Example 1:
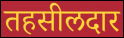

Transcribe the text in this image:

तहसीलदार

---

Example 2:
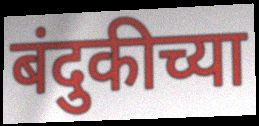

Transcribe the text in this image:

बंदुकीच्या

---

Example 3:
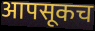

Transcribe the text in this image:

आपसूकच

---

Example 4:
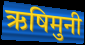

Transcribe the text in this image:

ऋषिमुनी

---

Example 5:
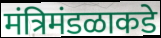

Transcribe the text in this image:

मंत्रिमंडळाकडे